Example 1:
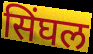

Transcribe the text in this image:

सिंघल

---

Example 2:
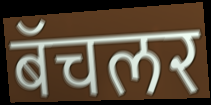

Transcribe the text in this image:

बॅचलर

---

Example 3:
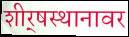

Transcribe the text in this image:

शीर्षस्थानावर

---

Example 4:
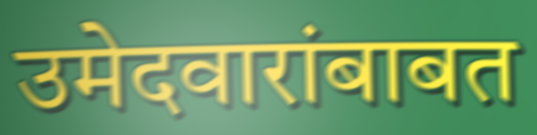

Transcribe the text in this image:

उमेदवारांबाबत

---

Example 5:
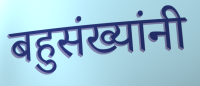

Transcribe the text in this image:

बहुसंख्यांनी